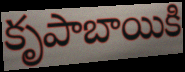
కృపాబాయికి